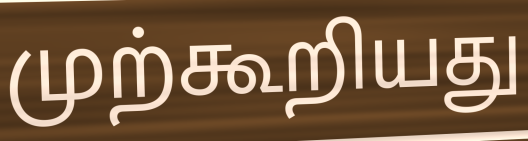
முற்கூறியது